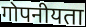
गोपनीयता